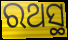
ରଥସ୍ଥ